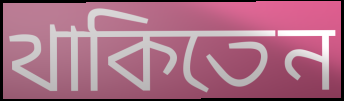
থাকিতেন